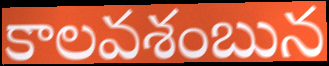
కాలవశంబున